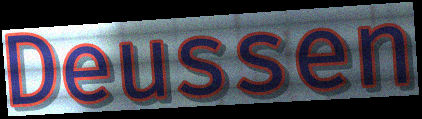
Deussen